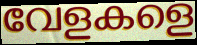
വേളകളെ